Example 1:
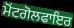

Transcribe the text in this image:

ਮੋਂਟਗੋਲਫਾਇਰ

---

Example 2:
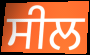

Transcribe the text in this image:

ਸੀਲ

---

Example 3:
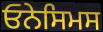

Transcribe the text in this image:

ਓਨੇਸਿਮਸ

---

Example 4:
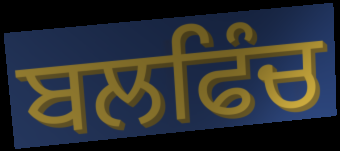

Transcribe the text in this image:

ਬਲਫਿੰਚ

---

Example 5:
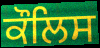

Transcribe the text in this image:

ਕੌਲਿਸ